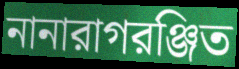
নানারাগরঞ্জিত